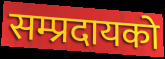
सम्प्रदायको